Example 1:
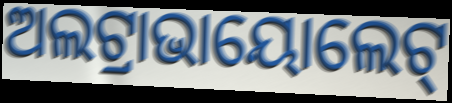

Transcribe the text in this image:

ଅଲଟ୍ରାଭାୟୋଲେଟ୍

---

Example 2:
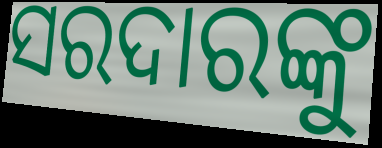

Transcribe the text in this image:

ସରଦାରଙ୍କୁ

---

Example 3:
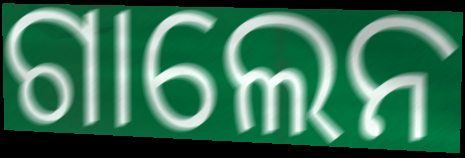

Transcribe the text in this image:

ଗାଲେନ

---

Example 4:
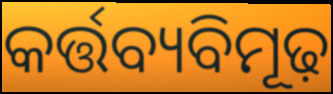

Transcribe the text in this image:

କର୍ତ୍ତବ୍ୟବିମୂଢ଼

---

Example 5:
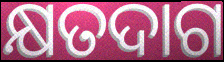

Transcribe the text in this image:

କ୍ଷତଦାଗ